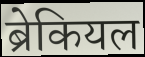
ब्रेकियल